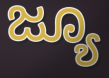
ಜ್ಯೂ